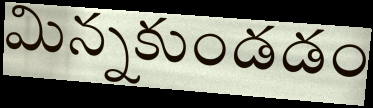
మిన్నకుండడం